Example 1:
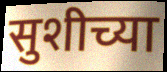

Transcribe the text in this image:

सुशीच्या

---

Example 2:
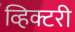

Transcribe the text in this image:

व्हिक्टरी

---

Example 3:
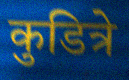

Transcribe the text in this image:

कुडित्रे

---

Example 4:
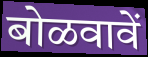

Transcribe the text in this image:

बोळवावें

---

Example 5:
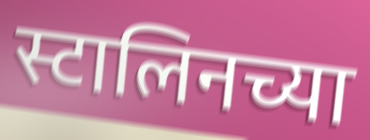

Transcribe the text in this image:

स्टालिनच्या